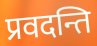
प्रवदन्ति